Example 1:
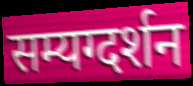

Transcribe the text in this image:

सम्यग्दर्शन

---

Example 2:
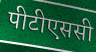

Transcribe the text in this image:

पीटीएससी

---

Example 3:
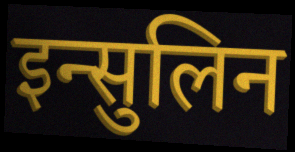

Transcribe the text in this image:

इन्सुलिन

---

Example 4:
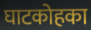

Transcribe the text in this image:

घाटकोहका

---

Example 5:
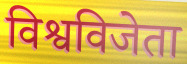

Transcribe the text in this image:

विश्वविजेता